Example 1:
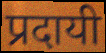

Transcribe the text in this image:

प्रदायी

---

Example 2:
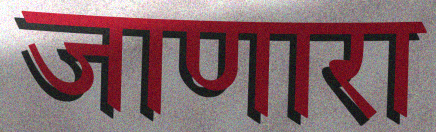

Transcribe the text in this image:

जाणारा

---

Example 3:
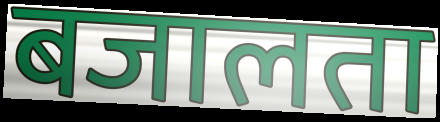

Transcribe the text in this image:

बजालता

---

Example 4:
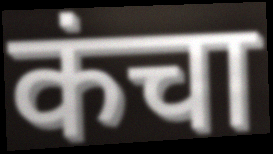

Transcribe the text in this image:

कंचा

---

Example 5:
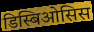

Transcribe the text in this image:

डिस्बिओसिस